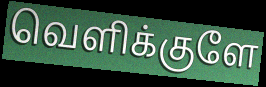
வெளிக்குளே